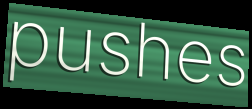
pushes